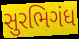
સુરભિગંધ